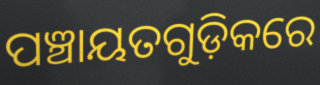
ପଞ୍ଚାୟତଗୁଡ଼ିକରେ